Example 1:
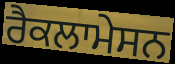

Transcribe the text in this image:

ਰੈਕਲਾਮੇਸਨ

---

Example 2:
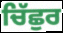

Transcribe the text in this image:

ਚਿੱਛੁਰ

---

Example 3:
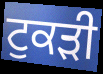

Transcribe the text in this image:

ਟੁਕਡ਼ੀ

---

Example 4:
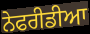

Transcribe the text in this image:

ਨੇਫਰੀਡੀਆ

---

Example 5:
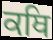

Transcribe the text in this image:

ਕਥਿ